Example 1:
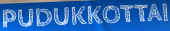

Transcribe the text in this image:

PUDUKKOTTAI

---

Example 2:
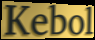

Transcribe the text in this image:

Kebol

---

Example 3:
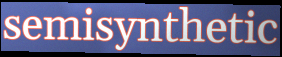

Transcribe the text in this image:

semisynthetic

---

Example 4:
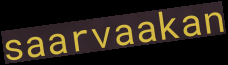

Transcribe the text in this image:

saarvaakan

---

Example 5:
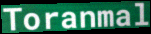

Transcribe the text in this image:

Toranmal